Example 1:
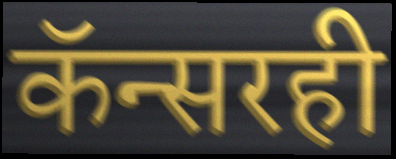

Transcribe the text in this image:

कॅन्सरही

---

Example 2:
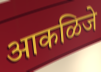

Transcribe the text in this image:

आकळिजे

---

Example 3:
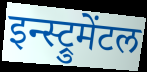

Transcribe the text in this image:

इन्स्ट्रुमेंटल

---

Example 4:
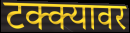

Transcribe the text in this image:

टक्क्यावर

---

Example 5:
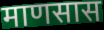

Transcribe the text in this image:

माणसास